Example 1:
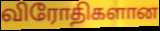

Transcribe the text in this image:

விரோதிகளான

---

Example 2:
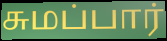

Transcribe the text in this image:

சுமப்பார்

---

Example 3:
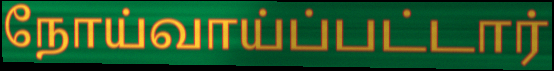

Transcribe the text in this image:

நோய்வாய்ப்பட்டார்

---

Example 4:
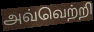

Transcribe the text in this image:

அவ்வெற்றி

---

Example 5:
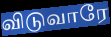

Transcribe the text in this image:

விடுவாரே